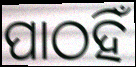
ପାଠହିଁ